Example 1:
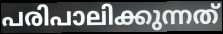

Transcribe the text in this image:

പരിപാലിക്കുന്നത്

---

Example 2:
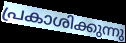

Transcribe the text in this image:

പ്രകാശിക്കുന്നു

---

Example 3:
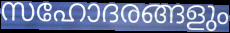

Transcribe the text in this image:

സഹോദരങ്ങളും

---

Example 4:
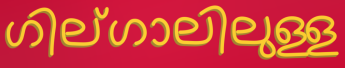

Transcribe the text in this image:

ഗില്ഗാലിലുള്ള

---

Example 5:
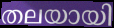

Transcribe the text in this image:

തലയായി